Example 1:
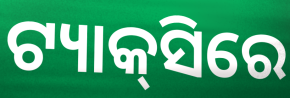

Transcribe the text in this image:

ଟ୍ୟାକ୍‍ସିରେ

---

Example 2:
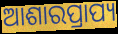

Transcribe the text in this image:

ଆଶାରପ୍ରାପ୍ୟ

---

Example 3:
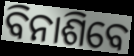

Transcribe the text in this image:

ବିନାଶିବେ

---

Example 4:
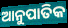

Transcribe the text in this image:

ଆନୁପାତିକ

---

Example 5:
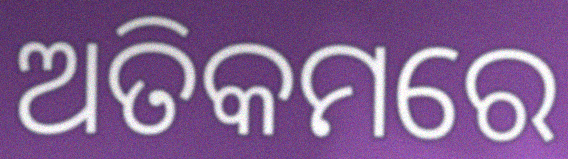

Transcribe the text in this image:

ଅତିକମରେ